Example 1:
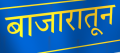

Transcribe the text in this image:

बाजारातून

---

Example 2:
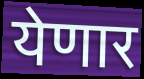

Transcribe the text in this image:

येणार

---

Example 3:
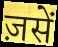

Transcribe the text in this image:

ज़सें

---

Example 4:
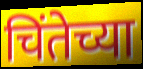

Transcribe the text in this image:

चिंतेच्या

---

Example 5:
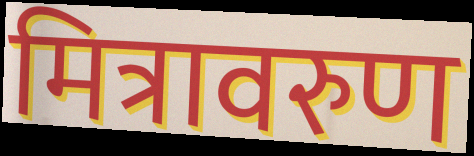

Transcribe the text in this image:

मित्रावरुण